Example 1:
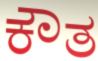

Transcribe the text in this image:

ಕೌತ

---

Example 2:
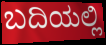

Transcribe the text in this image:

ಬದಿಯಲ್ಲಿ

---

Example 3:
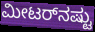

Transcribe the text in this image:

ಮೀಟರ್‌ನಷ್ಟು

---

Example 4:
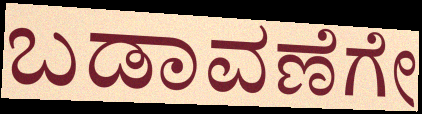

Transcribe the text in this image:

ಬಡಾವಣೆಗೇ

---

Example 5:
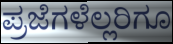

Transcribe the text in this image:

ಪ್ರಜೆಗಳೆಲ್ಲರಿಗೂ